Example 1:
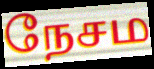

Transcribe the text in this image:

நேசம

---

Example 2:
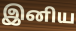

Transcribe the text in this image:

இனிய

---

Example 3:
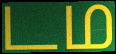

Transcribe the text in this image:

டம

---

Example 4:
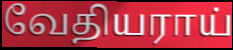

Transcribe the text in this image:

வேதியராய்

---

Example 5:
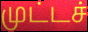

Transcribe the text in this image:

முட்டச்